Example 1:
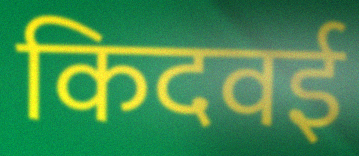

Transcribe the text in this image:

किदवई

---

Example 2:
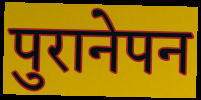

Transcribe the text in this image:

पुरानेपन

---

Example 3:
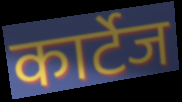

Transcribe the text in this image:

कार्टेज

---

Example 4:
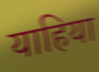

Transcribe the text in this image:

याहिया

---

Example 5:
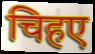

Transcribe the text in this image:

चिहए